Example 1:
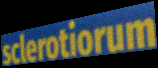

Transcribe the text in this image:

sclerotiorum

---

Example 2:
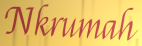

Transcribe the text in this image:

Nkrumah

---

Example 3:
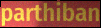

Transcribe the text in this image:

parthiban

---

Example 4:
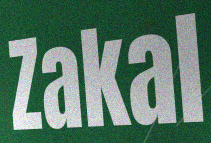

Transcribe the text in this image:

Zakal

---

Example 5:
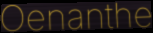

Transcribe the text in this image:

Oenanthe